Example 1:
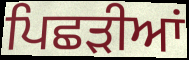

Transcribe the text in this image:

ਪਿਛੜੀਆਂ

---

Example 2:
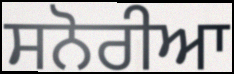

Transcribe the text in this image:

ਸਨੋਰੀਆ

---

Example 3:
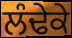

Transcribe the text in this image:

ਲੰਢੇਕੇ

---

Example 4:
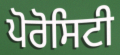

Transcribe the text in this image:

ਪੋਰੋਸਿਟੀ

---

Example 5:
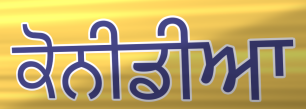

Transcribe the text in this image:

ਕੋਨੀਡੀਆ